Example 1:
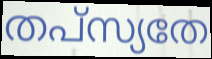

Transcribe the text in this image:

തപ്സ്യതേ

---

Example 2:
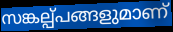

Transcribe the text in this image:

സങ്കല്പ്പങ്ങളുമാണ്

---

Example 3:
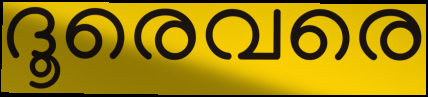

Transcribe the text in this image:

ദൂരെവരെ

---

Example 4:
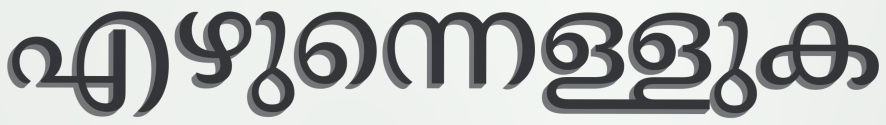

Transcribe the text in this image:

എഴുന്നെള്ളുക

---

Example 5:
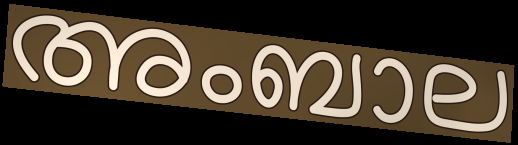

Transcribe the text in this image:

അംബാല